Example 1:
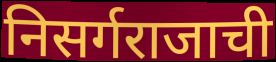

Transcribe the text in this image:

निसर्गराजाची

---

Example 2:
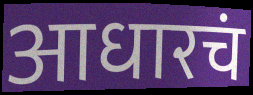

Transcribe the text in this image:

आधारचं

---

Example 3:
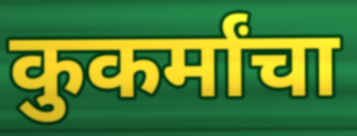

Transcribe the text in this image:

कुकर्मांचा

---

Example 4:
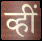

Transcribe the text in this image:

व्हीं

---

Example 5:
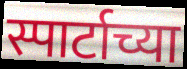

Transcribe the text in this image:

स्पार्टाच्या